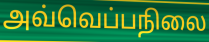
அவ்வெப்பநிலை